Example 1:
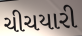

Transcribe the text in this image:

ચીચયારી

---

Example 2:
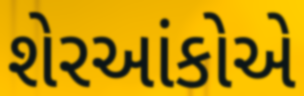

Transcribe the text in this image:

શેરઆંકોએ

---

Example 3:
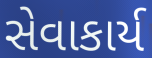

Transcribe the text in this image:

સેવાકાર્ય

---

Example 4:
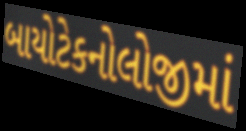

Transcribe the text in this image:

બાયોટેકનોલોજીમાં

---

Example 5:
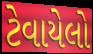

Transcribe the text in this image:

ટેવાયેલો